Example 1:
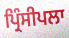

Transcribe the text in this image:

ਪ੍ਰਿੰਸੀਪਲਾ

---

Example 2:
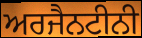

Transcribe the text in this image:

ਅਰਜੈਨਟੀਨੀ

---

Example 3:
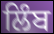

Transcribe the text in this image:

ਲਿੰਬ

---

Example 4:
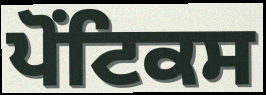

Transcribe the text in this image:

ਪੋਂਟਿਕਸ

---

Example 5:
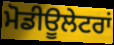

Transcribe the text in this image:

ਮੋਡੀਊਲੇਟਰਾਂ